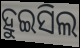
ହୁଇସିଲ